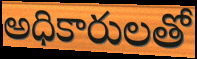
అధికారులతో